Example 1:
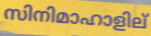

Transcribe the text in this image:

സിനിമാഹാളില്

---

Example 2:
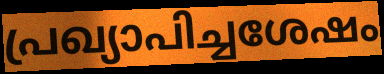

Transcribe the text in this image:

പ്രഖ്യാപിച്ചശേഷം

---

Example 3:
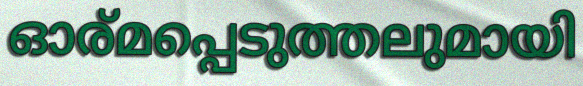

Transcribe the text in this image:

ഓര്മപ്പെടുത്തലുമായി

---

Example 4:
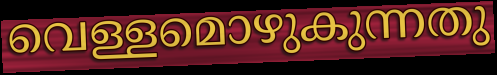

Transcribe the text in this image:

വെള്ളമൊഴുകുന്നതു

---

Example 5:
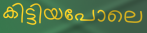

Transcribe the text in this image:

കിട്ടിയപോലെ